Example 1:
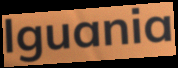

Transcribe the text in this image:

Iguania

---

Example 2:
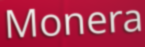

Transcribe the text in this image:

Monera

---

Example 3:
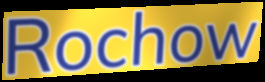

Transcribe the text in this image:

Rochow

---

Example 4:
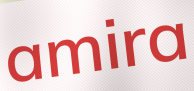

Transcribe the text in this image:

amira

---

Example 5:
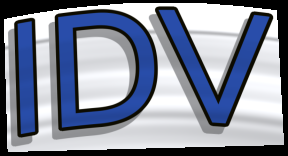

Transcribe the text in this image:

IDV